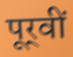
पूर्वीं